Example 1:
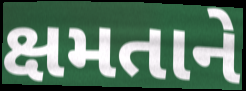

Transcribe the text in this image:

ક્ષમતાને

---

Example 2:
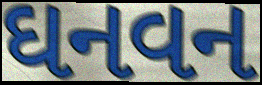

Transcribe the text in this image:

ઘનવન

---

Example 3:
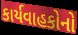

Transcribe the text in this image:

કાર્યવાહકોનો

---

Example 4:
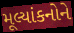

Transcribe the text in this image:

મૂલ્યાંકનોને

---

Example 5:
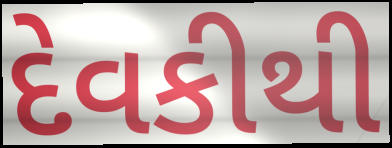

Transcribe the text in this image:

દેવકીથી